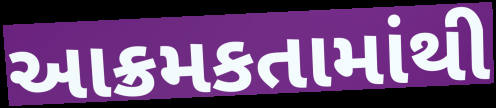
આક્રમકતામાંથી